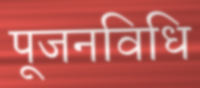
पूजनविधि